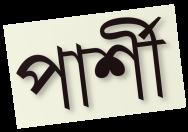
পার্শী